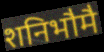
शनिभौमै